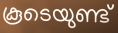
കൂടെയുണ്ട്